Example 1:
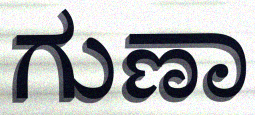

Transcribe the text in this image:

ಗುಣಾ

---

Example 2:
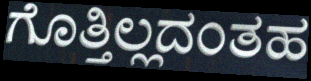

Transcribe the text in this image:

ಗೊತ್ತಿಲ್ಲದಂತಹ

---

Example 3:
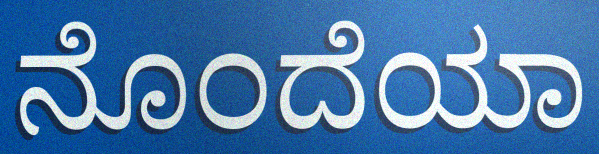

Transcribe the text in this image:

ನೊಂದೆಯಾ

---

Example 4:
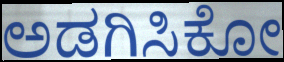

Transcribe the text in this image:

ಅಡಗಿಸಿಕೋ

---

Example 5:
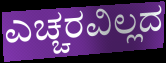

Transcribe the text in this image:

ಎಚ್ಚರವಿಲ್ಲದ